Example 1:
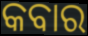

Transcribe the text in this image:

କବାର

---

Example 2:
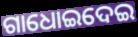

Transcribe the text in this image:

ଗାଧୋଇଦେଇ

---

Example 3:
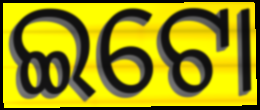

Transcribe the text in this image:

ଇଟୋ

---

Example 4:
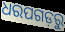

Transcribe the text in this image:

ଧରପଗଡ଼ରୁ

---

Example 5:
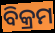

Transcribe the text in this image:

ବିକ୍ରମ